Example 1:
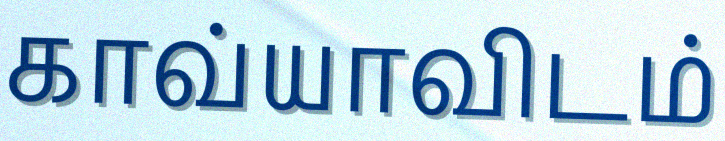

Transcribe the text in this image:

காவ்யாவிடம்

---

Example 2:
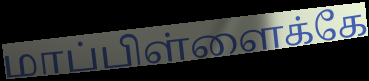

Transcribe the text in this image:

மாப்பிள்ளைக்கே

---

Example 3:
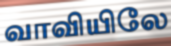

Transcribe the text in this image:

வாவியிலே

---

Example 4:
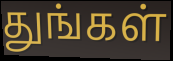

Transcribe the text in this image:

துங்கள்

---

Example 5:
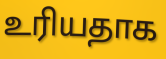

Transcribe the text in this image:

உரியதாக